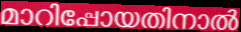
മാറിപ്പോയതിനാൽ